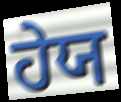
ਹੇਯ